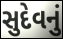
સુદેવનું